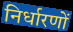
निर्धारणों